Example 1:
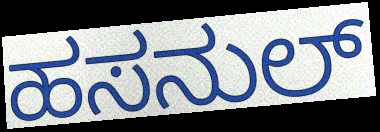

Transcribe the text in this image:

ಹಸನುಲ್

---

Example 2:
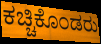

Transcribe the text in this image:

ಕಚ್ಚಿಕೊಂಡರು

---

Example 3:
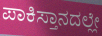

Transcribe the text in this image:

ಪಾಕಿಸ್ತಾನದಲ್ಲೇ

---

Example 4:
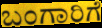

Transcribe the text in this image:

ಬಂಗಾರಿಗೆ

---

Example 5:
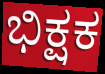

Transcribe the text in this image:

ಭಿಕ್ಷಕ